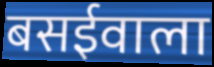
बसईवाला